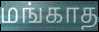
மங்காத